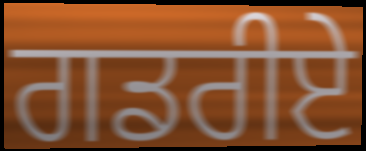
ਗਡਰੀਏ